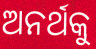
ଅନର୍ଥକୁ